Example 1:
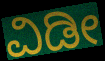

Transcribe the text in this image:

ವಿಡೀ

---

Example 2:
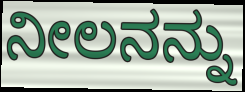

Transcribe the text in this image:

ನೀಲನನ್ನು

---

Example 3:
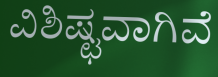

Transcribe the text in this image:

ವಿಶಿಷ್ಟವಾಗಿವೆ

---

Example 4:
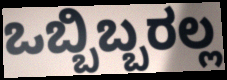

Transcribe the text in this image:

ಒಬ್ಬಿಬ್ಬರಲ್ಲ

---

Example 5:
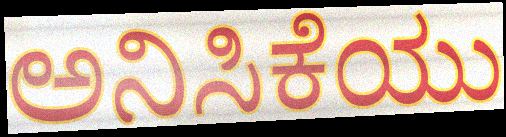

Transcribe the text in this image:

ಅನಿಸಿಕೆಯು